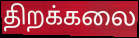
திறக்கலை